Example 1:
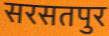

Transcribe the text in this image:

सरसतपुर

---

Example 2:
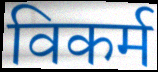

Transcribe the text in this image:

विकर्म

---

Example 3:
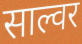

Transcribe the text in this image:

साल्वर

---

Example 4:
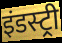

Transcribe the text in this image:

इंडस्‍ट्री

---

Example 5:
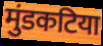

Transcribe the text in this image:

मुंडकटिया